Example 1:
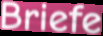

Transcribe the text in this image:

Briefe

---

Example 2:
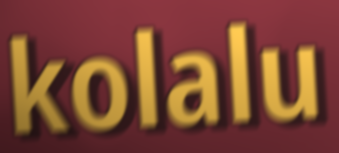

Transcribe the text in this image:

kolalu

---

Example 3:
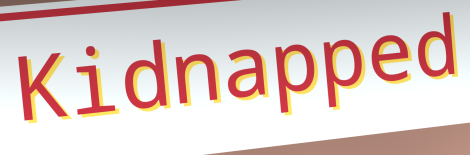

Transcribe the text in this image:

Kidnapped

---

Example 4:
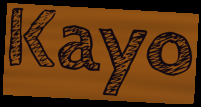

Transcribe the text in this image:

Kayo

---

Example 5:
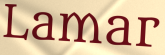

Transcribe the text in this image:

Lamar